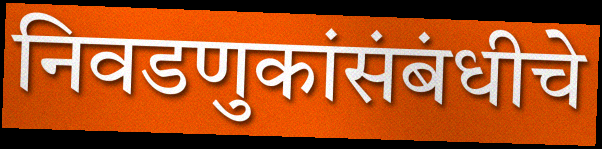
निवडणुकांसंबंधीचे